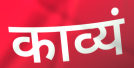
काव्यं